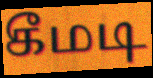
கீமடி